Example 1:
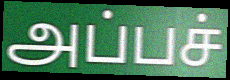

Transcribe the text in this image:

அப்பச்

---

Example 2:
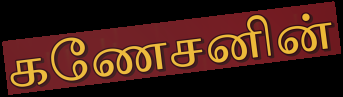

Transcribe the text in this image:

கணேசனின்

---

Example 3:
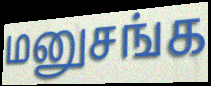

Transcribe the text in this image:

மனுசங்க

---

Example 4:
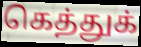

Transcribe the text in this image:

கெத்துக்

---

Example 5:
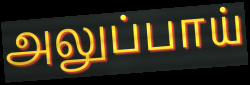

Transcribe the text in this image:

அலுப்பாய்